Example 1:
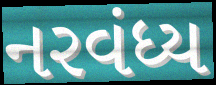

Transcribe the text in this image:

નરવંધ્ય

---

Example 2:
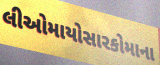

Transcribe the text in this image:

લીઓમાયોસારકોમાના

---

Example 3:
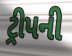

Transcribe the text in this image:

ટ્રીપની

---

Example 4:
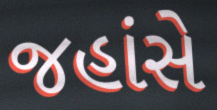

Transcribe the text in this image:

જહાંસે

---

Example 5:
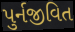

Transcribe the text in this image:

પુર્નજીવિત